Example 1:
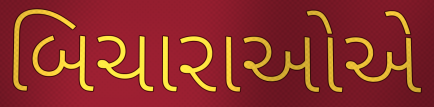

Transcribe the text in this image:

બિચારાઓએ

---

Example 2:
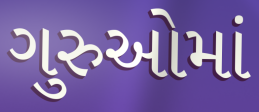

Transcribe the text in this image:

ગુરુઓમાં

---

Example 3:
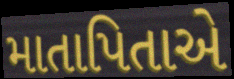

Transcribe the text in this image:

માતાપિતાએ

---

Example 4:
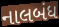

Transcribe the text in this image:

નાલબંધ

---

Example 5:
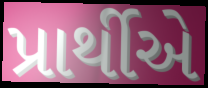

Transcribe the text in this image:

પ્રાર્થીએ